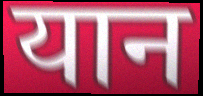
यान